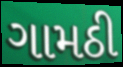
ગામઠી